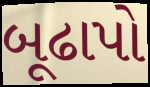
બૂઢાપો